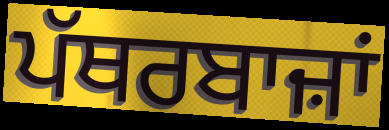
ਪੱਥਰਬਾਜ਼ਾਂ